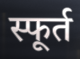
स्‍फूर्त